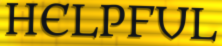
HELPFUL